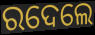
ରଦେଲେ